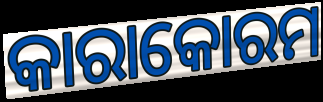
କାରାକୋରମ